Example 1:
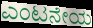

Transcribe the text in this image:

ಎಂಟನೇಯ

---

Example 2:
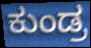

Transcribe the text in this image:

ಕುಂಡ್ರ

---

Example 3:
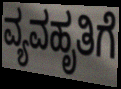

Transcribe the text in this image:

ವ್ಯವಹೃತಿಗೆ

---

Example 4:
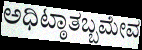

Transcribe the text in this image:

ಅಧಿಟ್ಠಾತಬ್ಬಮೇವ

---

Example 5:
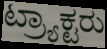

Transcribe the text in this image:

ಟ್ರ್ಯಾಕ್ಟರು